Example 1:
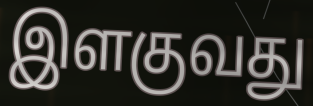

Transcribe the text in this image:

இளகுவது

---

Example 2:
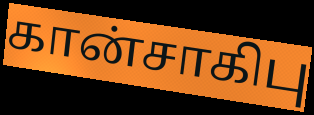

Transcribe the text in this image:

கான்சாகிபு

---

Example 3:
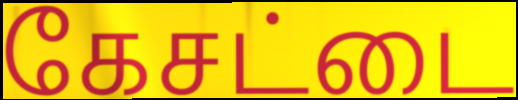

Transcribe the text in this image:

கேசட்டை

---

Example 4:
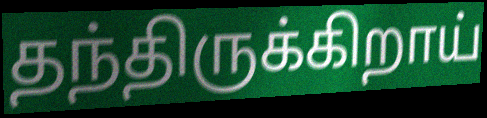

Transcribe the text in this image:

தந்திருக்கிறாய்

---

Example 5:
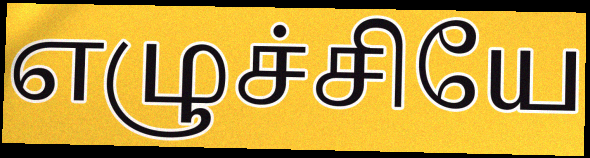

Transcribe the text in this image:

எழுச்சியே